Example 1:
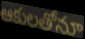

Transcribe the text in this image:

ఆకులతోనూ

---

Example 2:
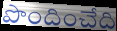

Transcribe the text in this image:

పొందించేది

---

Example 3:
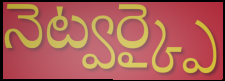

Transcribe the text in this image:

నెట్వర్క్పై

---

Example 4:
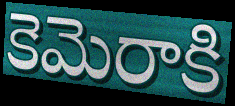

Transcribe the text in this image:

కెమెరాకి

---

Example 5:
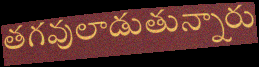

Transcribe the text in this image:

తగవులాడుతున్నారు